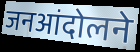
जनआंदोलने